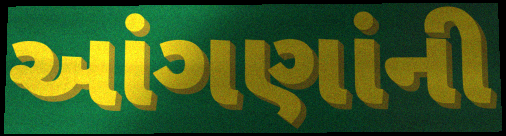
આંગણાંની